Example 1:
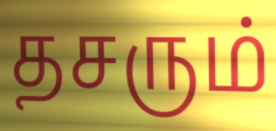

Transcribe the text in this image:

தசரும்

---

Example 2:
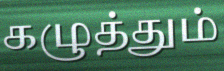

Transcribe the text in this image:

கழுத்தும்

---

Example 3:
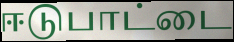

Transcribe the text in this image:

ஈடுபாட்டை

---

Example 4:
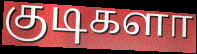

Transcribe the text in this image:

குடிகளா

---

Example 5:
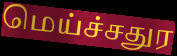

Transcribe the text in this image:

மெய்ச்சதுர